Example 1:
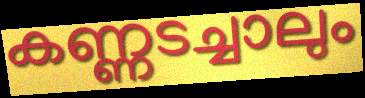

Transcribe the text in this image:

കണ്ണടച്ചാലും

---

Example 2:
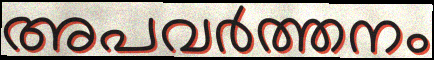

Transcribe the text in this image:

അപവർത്തനം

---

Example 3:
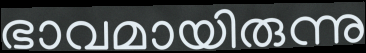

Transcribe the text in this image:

ഭാവമായിരുന്നു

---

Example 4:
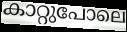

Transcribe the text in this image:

കാറ്റുപോലെ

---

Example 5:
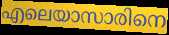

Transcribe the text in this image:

എലെയാസാരിനെ